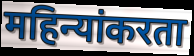
महिन्यांकरता